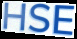
HSE